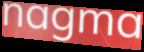
nagma